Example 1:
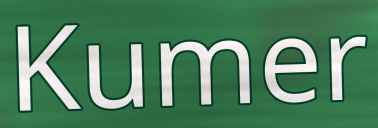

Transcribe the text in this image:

Kumer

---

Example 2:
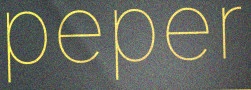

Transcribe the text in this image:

peper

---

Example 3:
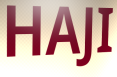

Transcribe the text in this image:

HAJI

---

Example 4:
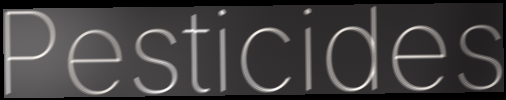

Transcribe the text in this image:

Pesticides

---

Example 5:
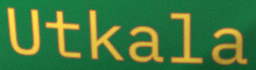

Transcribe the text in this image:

Utkala